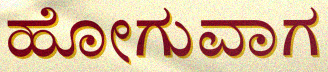
ಹೋಗುವಾಗ